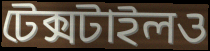
টেক্সটাইলও